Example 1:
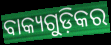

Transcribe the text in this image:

ବାକ୍ୟଗୁଡ଼ିକର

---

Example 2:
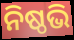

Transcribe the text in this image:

ନିଷ୍ଠଭି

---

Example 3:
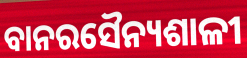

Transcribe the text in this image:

ବାନରସୈନ୍ୟଶାଳୀ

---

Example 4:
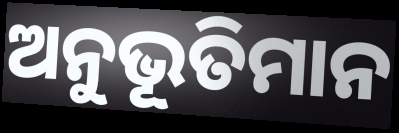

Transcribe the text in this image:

ଅନୁଭୂତିମାନ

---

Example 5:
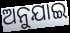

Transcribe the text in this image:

ଅନୁଯାଇ